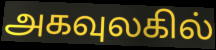
அகவுலகில்